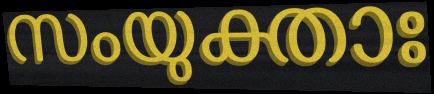
സംയുക്താഃ